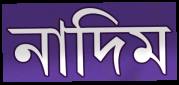
নাদিম